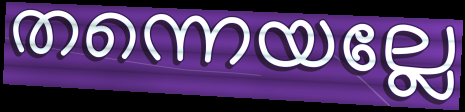
തന്നെയല്ലേ